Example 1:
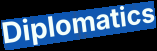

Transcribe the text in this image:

Diplomatics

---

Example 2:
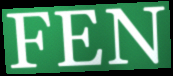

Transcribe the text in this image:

FEN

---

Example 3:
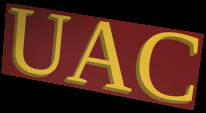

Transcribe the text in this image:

UAC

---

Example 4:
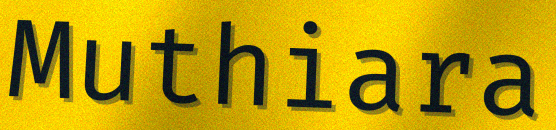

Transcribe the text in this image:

Muthiara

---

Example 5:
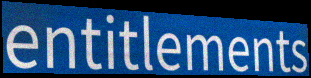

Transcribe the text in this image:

entitlements